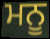
ਮਨੂ